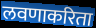
लवणाकरिता